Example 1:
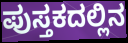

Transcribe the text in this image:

ಪುಸ್ತಕದಲ್ಲಿನ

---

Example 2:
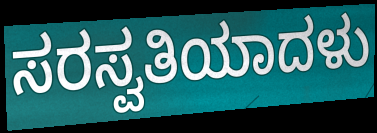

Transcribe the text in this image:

ಸರಸ್ವತಿಯಾದಳು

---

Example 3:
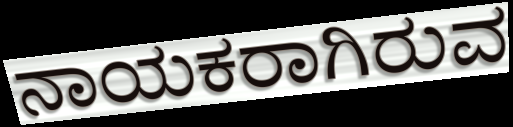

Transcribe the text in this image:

ನಾಯಕರಾಗಿರುವ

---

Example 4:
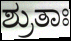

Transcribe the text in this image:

ಶ್ರುತಾಃ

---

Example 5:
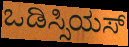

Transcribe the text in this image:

ಒಡಿಸ್ಸಿಯಸ್